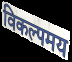
विकल्पमय